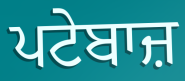
ਪਟੇਬਾਜ਼